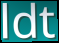
ldt